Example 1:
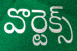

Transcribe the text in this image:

వొర్టెక్స్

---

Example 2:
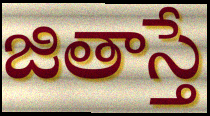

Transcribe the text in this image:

జితాస్తే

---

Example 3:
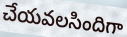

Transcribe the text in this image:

చేయవలసిందిగా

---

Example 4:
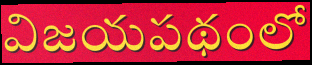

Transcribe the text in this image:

విజయపథంలో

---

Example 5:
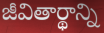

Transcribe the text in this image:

జీవితార్థాన్ని